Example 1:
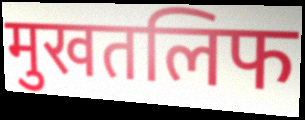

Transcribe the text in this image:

मुखतलिफ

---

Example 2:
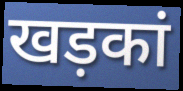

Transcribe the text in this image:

खड़कां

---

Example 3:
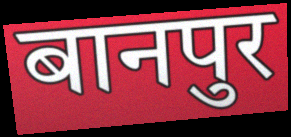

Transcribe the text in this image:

बानपुर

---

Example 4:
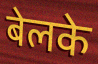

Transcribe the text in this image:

बेलके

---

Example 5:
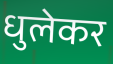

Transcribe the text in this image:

धुलेकर